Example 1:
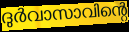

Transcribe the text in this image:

ദുർവാസാവിന്റെ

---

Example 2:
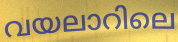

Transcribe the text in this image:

വയലാറിലെ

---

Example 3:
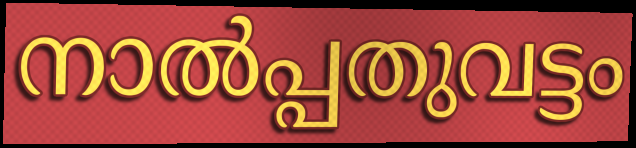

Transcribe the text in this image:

നാൽപ്പതുവട്ടം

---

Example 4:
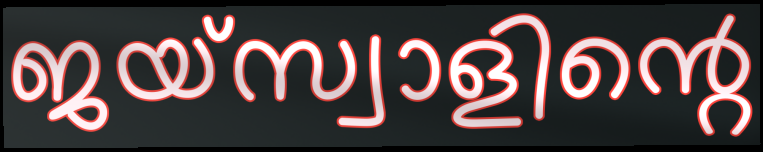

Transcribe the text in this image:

ജയ്സ്വാളിന്റെ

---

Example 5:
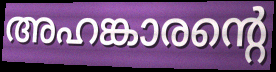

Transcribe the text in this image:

അഹങ്കാരന്റെ